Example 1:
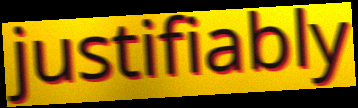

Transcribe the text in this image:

justifiably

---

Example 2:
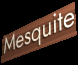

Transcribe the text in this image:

Mesquite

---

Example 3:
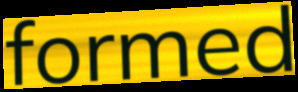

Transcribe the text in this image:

formed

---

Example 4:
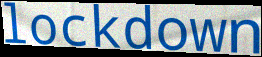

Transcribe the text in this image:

lockdown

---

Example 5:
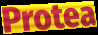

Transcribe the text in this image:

Protea